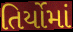
તિર્યોમાં